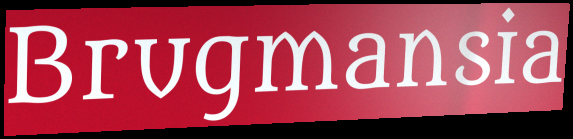
Brugmansia